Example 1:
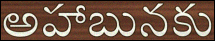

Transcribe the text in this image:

అహాబునకు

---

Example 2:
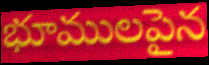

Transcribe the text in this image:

భూములపైన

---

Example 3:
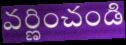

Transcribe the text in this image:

వర్ణించండి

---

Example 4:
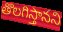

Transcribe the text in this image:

తొలగిస్తానని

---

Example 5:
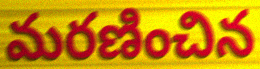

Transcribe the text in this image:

మరణించిన